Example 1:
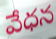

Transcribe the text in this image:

వేధన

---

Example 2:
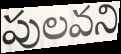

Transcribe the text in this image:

పులవని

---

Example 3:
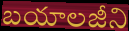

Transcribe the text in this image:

బయాలజీని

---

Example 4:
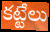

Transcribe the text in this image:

కట్టేలు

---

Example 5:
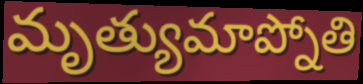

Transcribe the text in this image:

మృత్యుమాప్నోతి